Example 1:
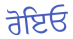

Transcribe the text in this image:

ਰੋਇਓ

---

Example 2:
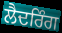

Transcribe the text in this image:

ਲੈਦਰਿੰਗ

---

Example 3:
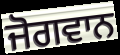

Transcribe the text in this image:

ਜੋਗਵਾਨ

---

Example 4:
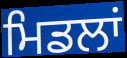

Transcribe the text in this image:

ਮਿਡਲਾਂ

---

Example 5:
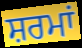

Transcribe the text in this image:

ਸ਼ਰਮਾਂ